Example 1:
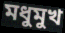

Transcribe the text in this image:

মধুমুখ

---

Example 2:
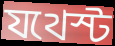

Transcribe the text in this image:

যথেস্ট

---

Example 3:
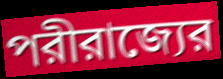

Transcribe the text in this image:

পরীরাজ্যের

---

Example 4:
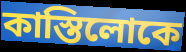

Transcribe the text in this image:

কাস্তিলোকে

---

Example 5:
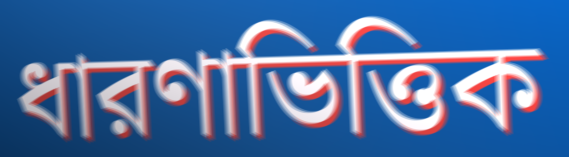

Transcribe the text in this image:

ধারণাভিত্তিক